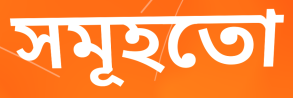
সমূহতো